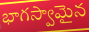
భాగస్వామైన